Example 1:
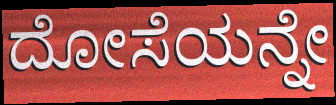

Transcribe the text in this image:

ದೋಸೆಯನ್ನೇ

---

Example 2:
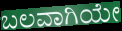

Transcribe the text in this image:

ಬಲವಾಗಿಯೇ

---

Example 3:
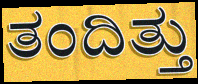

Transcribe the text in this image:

ತಂದಿತ್ತು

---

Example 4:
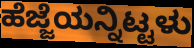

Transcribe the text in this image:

ಹೆಜ್ಜೆಯನ್ನಿಟ್ಟಳು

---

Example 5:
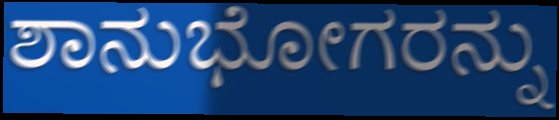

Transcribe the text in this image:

ಶಾನುಭೋಗರನ್ನು